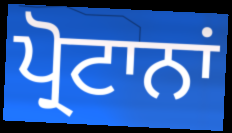
ਪ੍ਰੋਟਾਨਾਂ